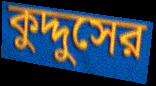
কুদ্দুসের